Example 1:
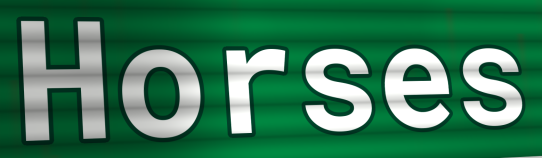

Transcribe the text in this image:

Horses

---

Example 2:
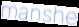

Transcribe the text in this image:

manshe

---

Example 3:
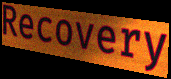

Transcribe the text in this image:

Recovery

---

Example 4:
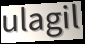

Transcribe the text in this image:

ulagil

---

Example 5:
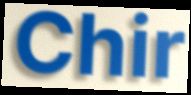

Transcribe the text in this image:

Chir